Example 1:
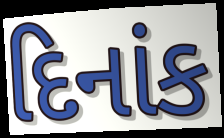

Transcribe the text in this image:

દિનાંક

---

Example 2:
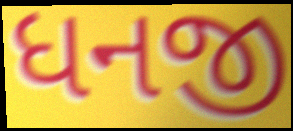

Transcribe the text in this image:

ધનજી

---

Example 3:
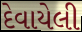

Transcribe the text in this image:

દેવાયેલી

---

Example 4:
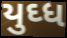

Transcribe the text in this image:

યુઘ્ધ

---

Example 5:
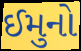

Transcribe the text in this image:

ઈમુનો